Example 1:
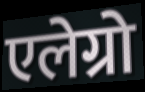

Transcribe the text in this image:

एलेग्रो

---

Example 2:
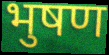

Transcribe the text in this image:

भुषण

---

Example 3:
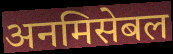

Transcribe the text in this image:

अनमिसेबल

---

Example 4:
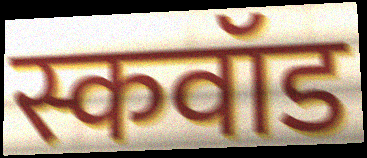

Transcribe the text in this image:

स्कवॉड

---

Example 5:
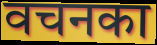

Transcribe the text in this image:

वचनका